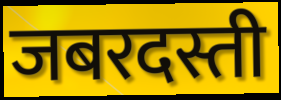
जबरदस्ती